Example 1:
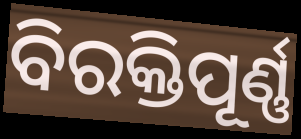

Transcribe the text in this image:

ବିରକ୍ତିପୂର୍ଣ୍ଣ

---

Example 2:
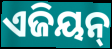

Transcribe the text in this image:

ଏଜିୟନ୍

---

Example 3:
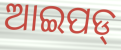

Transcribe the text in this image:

ଆଇପଡ୍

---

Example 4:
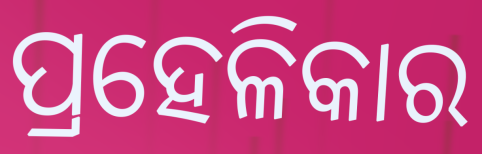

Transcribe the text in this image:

ପ୍ରହେଳିକାର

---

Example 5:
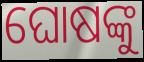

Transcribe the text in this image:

ଘୋଷଙ୍କୁ